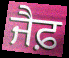
ਜੈਫ਼